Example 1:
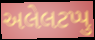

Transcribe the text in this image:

અલેલટપ્પુ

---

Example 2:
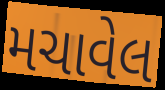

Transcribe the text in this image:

મચાવેલ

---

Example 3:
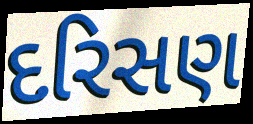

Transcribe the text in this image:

દરિસણ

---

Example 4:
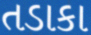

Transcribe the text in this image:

તડાકા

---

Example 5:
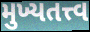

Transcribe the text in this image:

મુખ્યતત્ત્વ